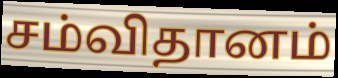
சம்விதானம்